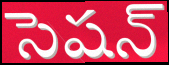
సెషన్